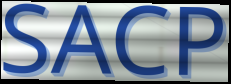
SACP